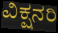
ವಿಕ್ಷನರಿ